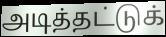
அடித்தட்டுக்